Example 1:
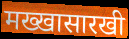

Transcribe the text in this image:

मख्खासारखी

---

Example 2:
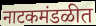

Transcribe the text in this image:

नाटकमंडळीत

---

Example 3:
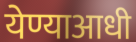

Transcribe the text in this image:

येण्याआधी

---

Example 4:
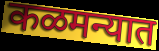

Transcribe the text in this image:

कळमन्यात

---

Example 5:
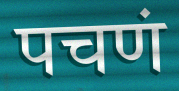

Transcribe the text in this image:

पचणं